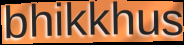
bhikkhus